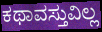
ಕಥಾವಸ್ತುವಿಲ್ಲ